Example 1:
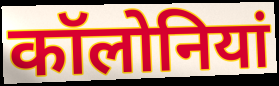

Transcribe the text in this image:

कॉलोनियां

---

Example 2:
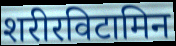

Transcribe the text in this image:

शरीरविटामिन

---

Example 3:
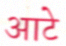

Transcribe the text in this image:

आटे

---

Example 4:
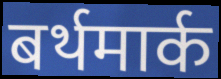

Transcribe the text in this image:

बर्थमार्क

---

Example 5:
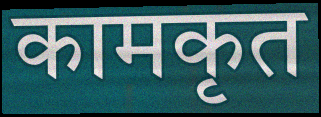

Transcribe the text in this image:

कामकृत